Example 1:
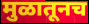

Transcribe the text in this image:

मुळातूनच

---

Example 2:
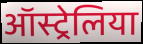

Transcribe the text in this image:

ऑस्ट्रेलिया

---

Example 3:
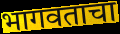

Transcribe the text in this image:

भागवताचा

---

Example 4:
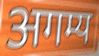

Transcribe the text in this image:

अगम्य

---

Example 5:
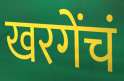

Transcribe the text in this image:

खरगेंचं